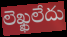
లెఖ్ఖలేదు